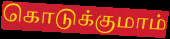
கொடுக்குமாம்